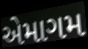
એમાગમ